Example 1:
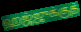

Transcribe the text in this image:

ஹஜ்ஜுக்குத்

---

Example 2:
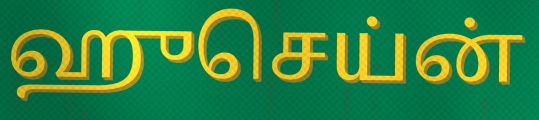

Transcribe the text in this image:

ஹுசெய்ன்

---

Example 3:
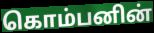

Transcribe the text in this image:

கொம்பனின்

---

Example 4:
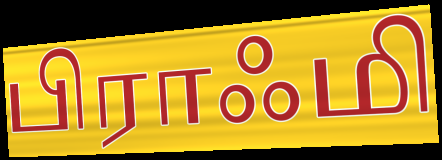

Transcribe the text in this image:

பிராஃமி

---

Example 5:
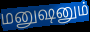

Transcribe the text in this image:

மனுஷனும்